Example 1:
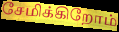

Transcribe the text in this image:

சேமிக்கிறோம்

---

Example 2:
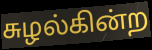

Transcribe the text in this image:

சுழல்கின்ற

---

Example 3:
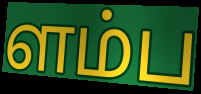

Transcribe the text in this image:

ளம்ப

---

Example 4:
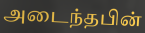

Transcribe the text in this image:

அடைந்தபின்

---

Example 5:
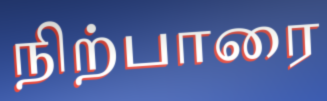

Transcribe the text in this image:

நிற்பாரை